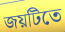
জয়টিতে